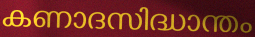
കണാദസിദ്ധാന്തം